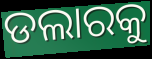
ଡଲାରକୁ